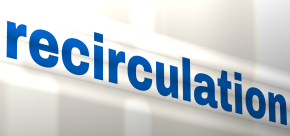
recirculation